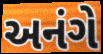
અનંગે